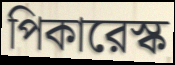
পিকারেস্ক